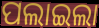
ପଲାଇଲା